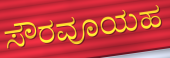
ಸೌರವೂಯಹ